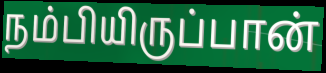
நம்பியிருப்பான்